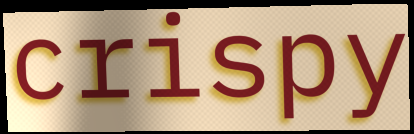
crispy